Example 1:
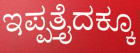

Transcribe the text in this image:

ಇಪ್ಪತ್ತೈದಕ್ಕೂ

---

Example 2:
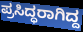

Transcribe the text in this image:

ಪ್ರಸಿದ್ಧರಾಗಿದ್ದ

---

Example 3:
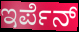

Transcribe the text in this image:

ಇರ್ಪೆನ್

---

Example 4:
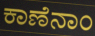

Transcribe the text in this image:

ಕಾಣೆನಾಂ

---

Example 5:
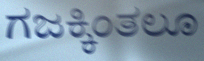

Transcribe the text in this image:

ಗಜಕ್ಕಿಂತಲೂ